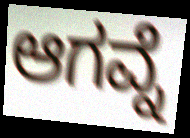
ಆಗವ್ನೆ